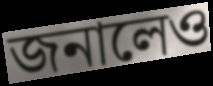
জনালেও